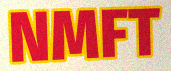
NMFT